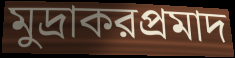
মুদ্রাকরপ্রমাদ